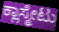
ಕ್ಲಾಸ್ಮೇಟು